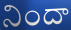
నిందా